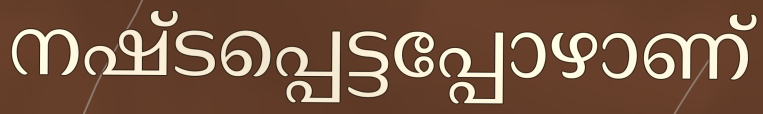
നഷ്ടപ്പെട്ടപ്പോഴാണ്